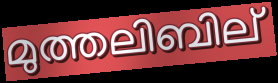
മുത്തലിബില്